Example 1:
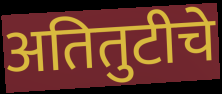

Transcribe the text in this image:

अतितुटीचे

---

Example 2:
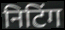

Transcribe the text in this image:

निटिंग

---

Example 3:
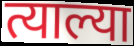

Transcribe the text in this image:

त्याल्या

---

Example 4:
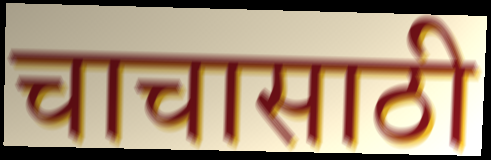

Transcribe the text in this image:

चाचासाठी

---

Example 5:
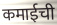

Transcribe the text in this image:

कमाईची